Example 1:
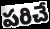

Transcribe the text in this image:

పరిచే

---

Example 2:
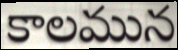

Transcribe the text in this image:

కాలమున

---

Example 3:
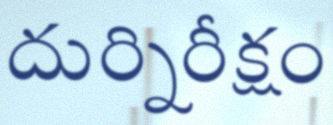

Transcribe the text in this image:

దుర్నిరీక్షం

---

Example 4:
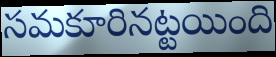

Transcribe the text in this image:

సమకూరినట్టయింది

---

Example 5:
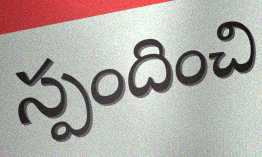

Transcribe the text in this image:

స్పందించి